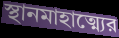
স্থানমাহাত্ম্যের